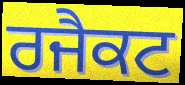
ਰਜੈਕਟ